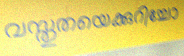
വസ്തുതയെക്കുറിച്ചോ